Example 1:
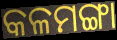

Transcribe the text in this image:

କଳମଙ୍ଗା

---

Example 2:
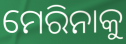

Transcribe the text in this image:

ମେରିନାକୁ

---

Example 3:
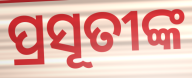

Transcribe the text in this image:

ପ୍ରସୂତୀଙ୍କ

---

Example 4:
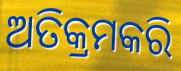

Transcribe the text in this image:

ଅତିକ୍ରମକରି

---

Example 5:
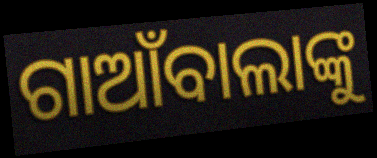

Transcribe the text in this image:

ଗାଆଁବାଲାଙ୍କୁ